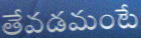
తేవడమంటే